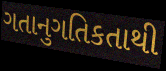
ગતાનુગતિકતાથી